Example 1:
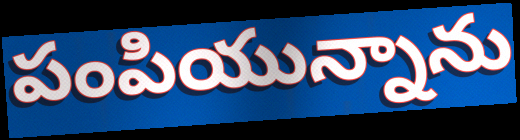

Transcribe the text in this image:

పంపియున్నాను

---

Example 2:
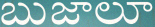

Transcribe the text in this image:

బుజాలూ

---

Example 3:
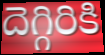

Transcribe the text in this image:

దెగ్గిరికి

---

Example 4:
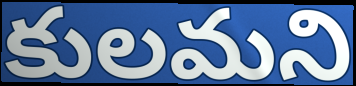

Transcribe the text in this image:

కులమని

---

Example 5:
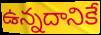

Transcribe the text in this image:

ఉన్నదానికే